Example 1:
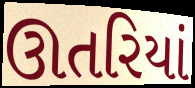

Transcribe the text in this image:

ઊતરિયાં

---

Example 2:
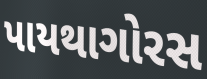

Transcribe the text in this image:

પાયથાગોરસ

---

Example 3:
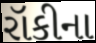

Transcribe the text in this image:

રૉકીના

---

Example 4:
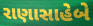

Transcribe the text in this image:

રાણાસાહેબે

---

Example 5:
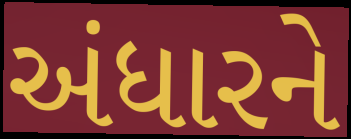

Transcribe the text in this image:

અંધારને